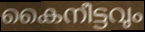
കൈനീട്ടവും